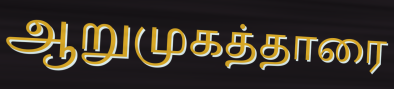
ஆறுமுகத்தாரை